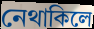
নেথাকিলে